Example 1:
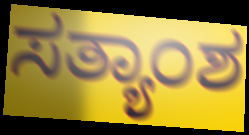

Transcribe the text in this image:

ಸತ್ಯಾಂಶ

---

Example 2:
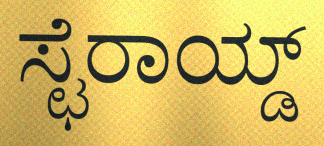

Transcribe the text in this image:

ಸ್ಟೆರಾಯ್ಡ್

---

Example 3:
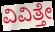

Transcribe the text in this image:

ವಿವಿತ್ತೇ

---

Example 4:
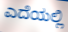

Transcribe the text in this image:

ಎದೆಯಲ್ಲಿ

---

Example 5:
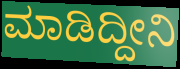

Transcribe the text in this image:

ಮಾಡಿದ್ದೀನಿ